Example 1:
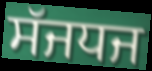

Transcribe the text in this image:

ਸੱਜਧਜ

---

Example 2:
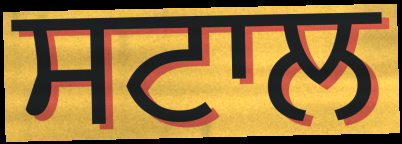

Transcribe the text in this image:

ਸਟਾਲ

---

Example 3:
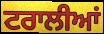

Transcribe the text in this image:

ਟਰਾਲੀਆਂ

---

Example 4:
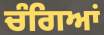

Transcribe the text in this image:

ਚੰਗਿਆਂ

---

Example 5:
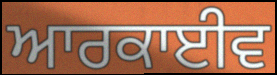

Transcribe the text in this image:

ਆਰਕਾਈਵ